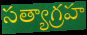
సత్యాగ్రహ